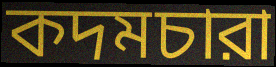
কদমচারা